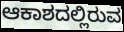
ಆಕಾಶದಲ್ಲಿರುವ